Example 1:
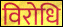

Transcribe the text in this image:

विरोधि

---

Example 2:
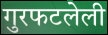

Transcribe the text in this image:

गुरफटलेली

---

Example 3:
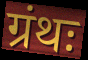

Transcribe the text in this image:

ग्रंथः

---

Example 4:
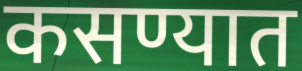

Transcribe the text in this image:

कसण्यात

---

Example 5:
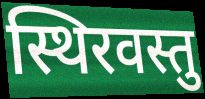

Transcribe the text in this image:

स्थिरवस्तु